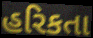
હરિકતા